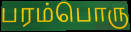
பரம்பொரு